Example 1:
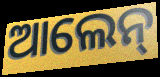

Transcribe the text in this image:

ଆଲେନ୍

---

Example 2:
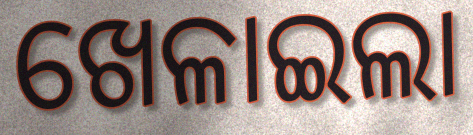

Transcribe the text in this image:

ଖେଳାଇଲା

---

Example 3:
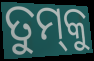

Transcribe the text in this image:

ତୁମ୍‌କୁ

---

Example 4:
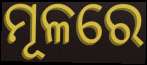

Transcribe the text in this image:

ମୂଳରେ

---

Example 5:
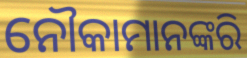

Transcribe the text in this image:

ନୌକାମାନଙ୍କରି